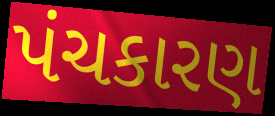
પંચકારણ